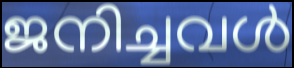
ജനിച്ചവൾ